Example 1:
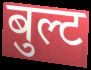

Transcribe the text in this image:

बुल्ट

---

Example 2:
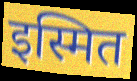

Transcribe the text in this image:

इस्मित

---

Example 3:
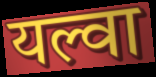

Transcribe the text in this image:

यल्वा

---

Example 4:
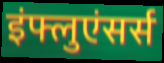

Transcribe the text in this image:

इंफ्लुएंसर्स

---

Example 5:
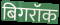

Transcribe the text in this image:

बिगरॉक